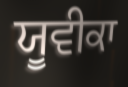
ਯੂਵੀਕਾ